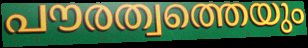
പൗരത്വത്തെയും